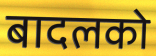
बादलको